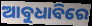
ଆବୁଧାବିରେ